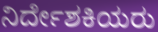
ನಿರ್ದೇಶಕಿಯರು